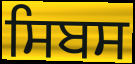
ਸਿਬਸ